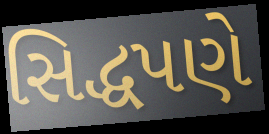
સિદ્ધપણે